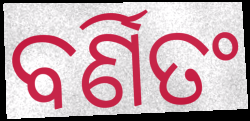
ବର୍ଣିତଂ